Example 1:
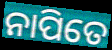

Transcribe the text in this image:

ନାପିତେ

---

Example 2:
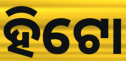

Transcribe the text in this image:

ହିଟୋ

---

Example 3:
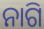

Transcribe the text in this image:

ନାଗି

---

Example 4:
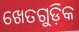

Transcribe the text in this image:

ଖେତଗୁଡ଼ିକ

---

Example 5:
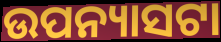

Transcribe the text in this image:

ଉପନ୍ୟାସଟା